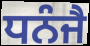
ਧਨੰਜੈ